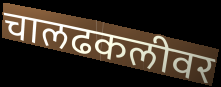
चालढकलीवर